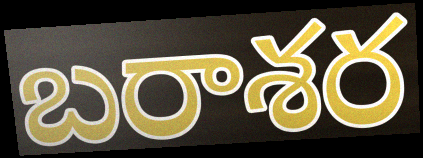
బరాశర